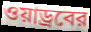
ওয়াড্রবের